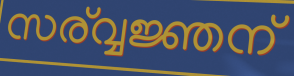
സര്വ്വജ്ഞന്